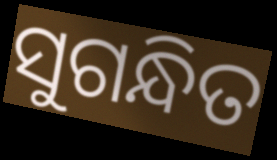
ସୁଗନ୍ଧିତ